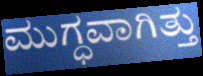
ಮುಗ್ಧವಾಗಿತ್ತು